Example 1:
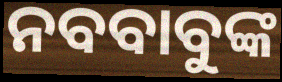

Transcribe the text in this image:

ନବବାବୁଙ୍କ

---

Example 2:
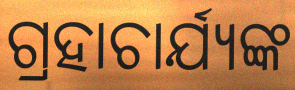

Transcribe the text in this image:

ଗ୍ରହାଚାର୍ଯ୍ୟଙ୍କ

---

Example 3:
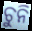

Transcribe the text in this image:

ଚୁନି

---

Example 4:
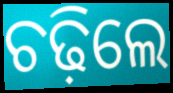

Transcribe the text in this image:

ଚଢ଼ିଲେ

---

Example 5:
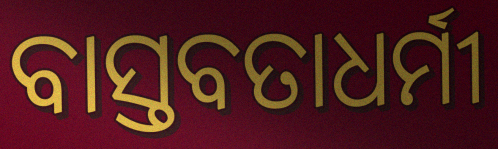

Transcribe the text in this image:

ବାସ୍ତବତାଧର୍ମୀ